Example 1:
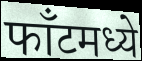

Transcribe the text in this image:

फाँटमध्ये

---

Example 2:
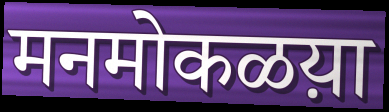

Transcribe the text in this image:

मनमोकळय़ा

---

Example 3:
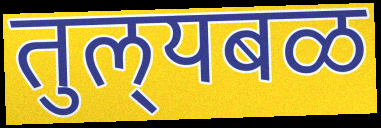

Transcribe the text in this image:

तुल्यबळ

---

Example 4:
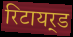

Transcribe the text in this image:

रिटायर्ड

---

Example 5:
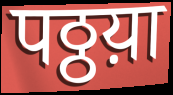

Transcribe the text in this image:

पठ्ठय़ा